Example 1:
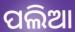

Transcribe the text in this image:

ପଲିଆ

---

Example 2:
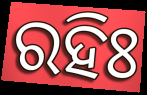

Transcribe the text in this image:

ରହିଃ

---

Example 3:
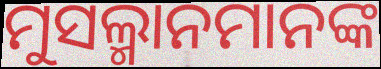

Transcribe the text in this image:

ମୁସଲ୍ମାନମାନଙ୍କ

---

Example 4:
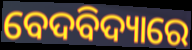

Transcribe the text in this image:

ବେଦବିଦ୍ୟାରେ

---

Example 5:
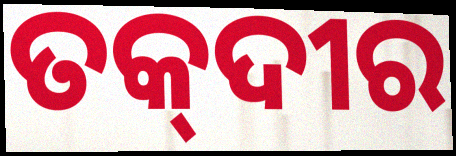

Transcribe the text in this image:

ତକ୍‌ଦୀର